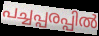
പച്ചപ്പരപ്പിൽ